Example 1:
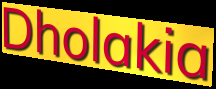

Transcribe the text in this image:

Dholakia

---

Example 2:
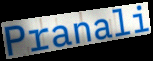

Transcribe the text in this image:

Pranali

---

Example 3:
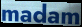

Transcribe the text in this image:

madam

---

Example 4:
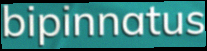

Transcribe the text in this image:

bipinnatus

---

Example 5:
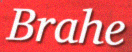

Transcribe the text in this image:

Brahe